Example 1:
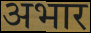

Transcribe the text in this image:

अभार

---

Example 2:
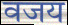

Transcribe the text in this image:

वजय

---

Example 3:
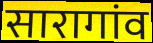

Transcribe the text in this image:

सारागांव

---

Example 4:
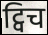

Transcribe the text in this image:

ट्विच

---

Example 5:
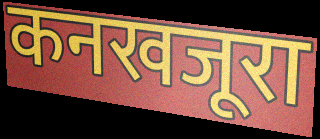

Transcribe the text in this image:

कनखजूरा